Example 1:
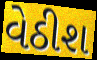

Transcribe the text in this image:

વેઠીશ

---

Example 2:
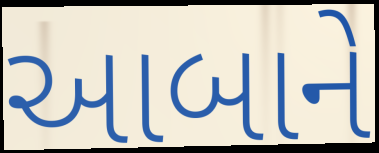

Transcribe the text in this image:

આબાને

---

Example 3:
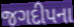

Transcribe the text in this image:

જગદીપના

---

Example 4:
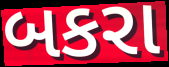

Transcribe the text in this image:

બકરા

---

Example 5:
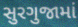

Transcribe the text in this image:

સુરગુજામાં